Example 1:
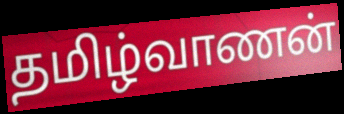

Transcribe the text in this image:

தமிழ்வாணன்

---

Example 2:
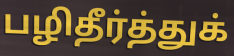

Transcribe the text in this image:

பழிதீர்த்துக்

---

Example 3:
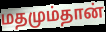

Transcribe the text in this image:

மதமும்தான்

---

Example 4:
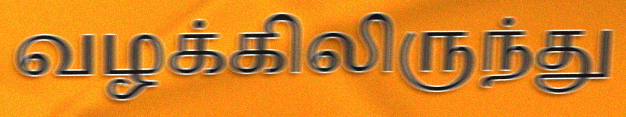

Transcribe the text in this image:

வழக்கிலிருந்து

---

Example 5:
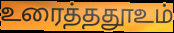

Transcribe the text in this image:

உரைத்ததூஉம்